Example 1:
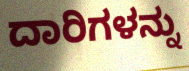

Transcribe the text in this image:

ದಾರಿಗಳನ್ನು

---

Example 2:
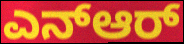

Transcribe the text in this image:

ಎನ್ಆರ್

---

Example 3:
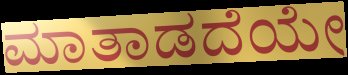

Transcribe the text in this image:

ಮಾತಾಡದೆಯೇ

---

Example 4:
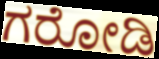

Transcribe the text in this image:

ಗರೋಡಿ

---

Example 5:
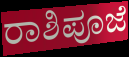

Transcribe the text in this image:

ರಾಶಿಪೂಜೆ